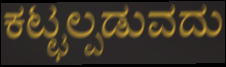
ಕಟ್ಟಲ್ಪಡುವದು